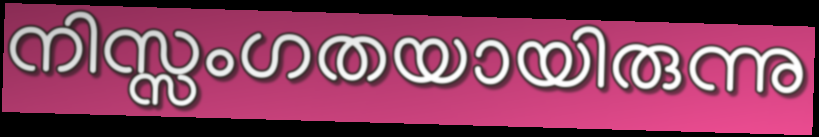
നിസ്സംഗതയായിരുന്നു